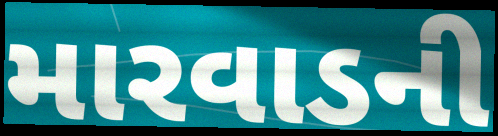
મારવાડની